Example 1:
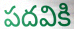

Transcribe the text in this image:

పదవికి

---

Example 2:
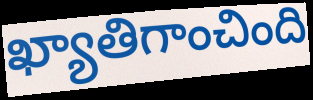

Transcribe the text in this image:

ఖ్యాతిగాంచింది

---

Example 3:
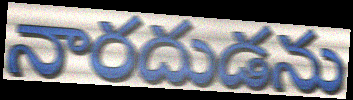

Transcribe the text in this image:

నారదుడను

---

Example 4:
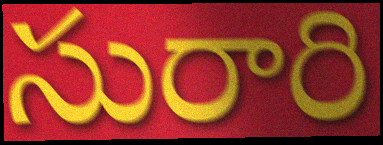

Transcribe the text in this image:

సురారి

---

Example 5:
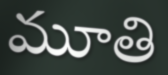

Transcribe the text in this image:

మూతి